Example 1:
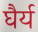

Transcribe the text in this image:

घैर्य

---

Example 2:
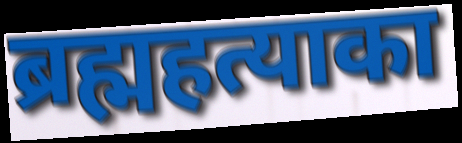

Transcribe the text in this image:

ब्रह्महत्याका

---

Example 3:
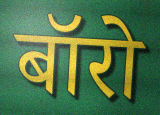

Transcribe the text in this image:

बॉरो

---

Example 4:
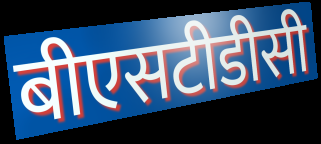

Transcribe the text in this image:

बीएसटीडीसी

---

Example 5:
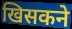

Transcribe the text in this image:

खिसकने